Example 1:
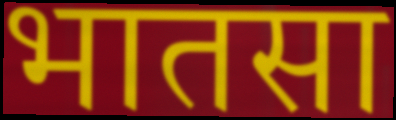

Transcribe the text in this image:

भातसा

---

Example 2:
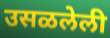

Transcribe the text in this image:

उसळलेली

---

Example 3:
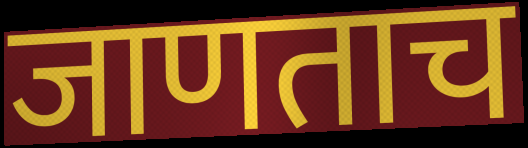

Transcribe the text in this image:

जाणताच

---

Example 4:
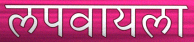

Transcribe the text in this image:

लपवायला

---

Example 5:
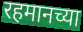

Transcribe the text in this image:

रहमानच्या